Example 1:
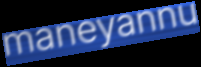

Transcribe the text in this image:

maneyannu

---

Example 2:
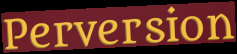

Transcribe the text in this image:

Perversion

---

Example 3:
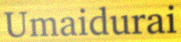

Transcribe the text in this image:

Umaidurai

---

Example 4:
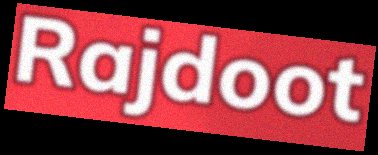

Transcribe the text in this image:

Rajdoot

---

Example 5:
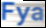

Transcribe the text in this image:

Fya